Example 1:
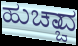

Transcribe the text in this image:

ಹುಚ್ಚಾದ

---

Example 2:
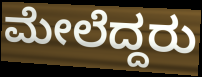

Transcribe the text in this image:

ಮೇಲೆದ್ದರು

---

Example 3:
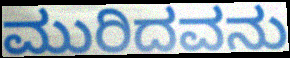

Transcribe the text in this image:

ಮುರಿದವನು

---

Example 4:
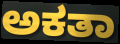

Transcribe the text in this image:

ಅಕತಾ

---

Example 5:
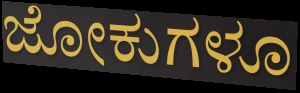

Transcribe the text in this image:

ಜೋಕುಗಳೂ